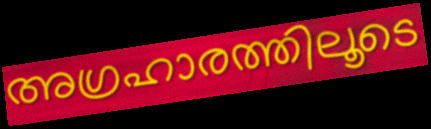
അഗ്രഹാരത്തിലൂടെ